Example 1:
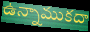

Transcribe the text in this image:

ఉన్నాముకదా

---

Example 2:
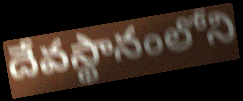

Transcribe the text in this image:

దేవస్థానంలోని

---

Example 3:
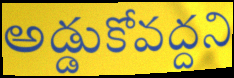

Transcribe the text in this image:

అడ్డుకోవద్దని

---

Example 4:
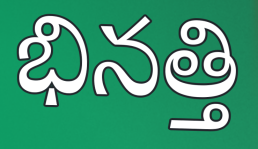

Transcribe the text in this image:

భినత్తి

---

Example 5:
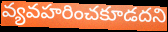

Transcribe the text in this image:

వ్యవహరించకూడదని